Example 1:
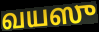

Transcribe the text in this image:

வயஸு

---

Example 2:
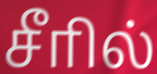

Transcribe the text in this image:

சீரில்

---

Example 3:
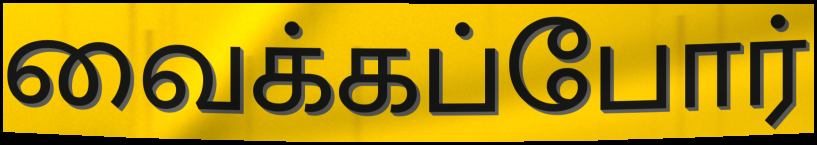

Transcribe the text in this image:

வைக்கப்போர்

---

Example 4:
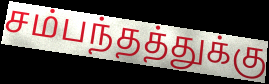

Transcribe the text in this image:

சம்பந்தத்துக்கு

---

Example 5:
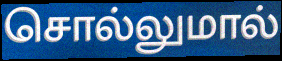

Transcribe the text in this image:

சொல்லுமால்